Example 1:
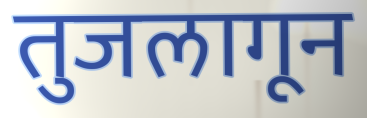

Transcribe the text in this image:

तुजलागून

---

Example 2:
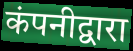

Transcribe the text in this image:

कंपनीद्वारा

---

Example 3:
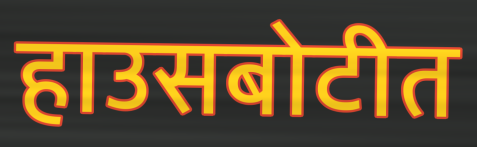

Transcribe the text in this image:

हाउसबोटीत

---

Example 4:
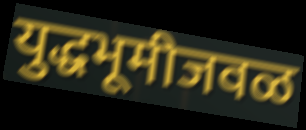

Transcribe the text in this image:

युद्धभूमीजवळ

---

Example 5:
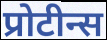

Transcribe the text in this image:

प्रोटीन्स